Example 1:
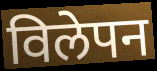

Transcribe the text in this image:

विलेपन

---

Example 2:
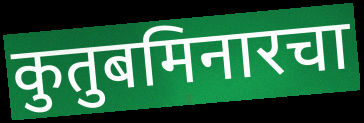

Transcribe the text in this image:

कुतुबमिनारचा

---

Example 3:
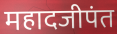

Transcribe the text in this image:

महादजीपंत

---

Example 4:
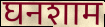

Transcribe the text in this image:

घनशाम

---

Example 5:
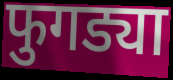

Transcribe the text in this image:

फुगड्या